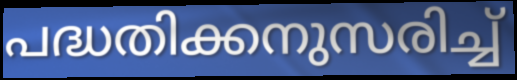
പദ്ധതിക്കനുസരിച്ച്